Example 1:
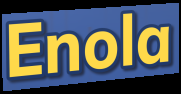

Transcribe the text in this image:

Enola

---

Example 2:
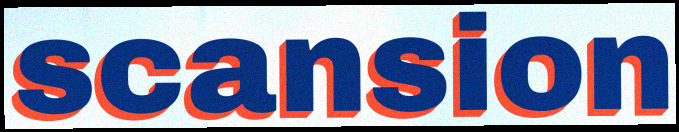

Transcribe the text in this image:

scansion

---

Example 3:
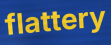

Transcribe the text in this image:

flattery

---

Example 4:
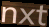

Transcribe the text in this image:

nxt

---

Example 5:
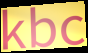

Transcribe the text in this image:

kbc